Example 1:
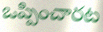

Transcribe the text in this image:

ఒప్పించారట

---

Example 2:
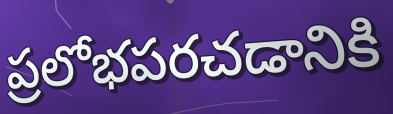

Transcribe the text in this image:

ప్రలోభపరచడానికి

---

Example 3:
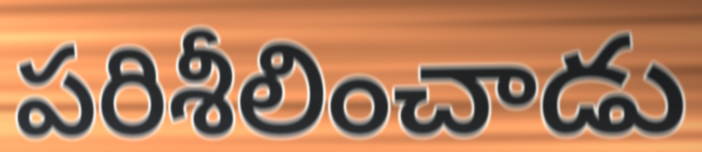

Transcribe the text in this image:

పరిశీలించాడు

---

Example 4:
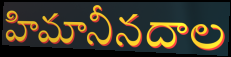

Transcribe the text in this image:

హిమానీనదాల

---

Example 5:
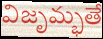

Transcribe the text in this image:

విజృమ్భతే